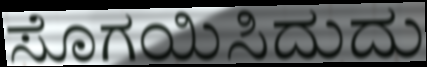
ಸೊಗಯಿಸಿದುದು